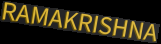
RAMAKRISHNA